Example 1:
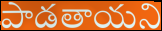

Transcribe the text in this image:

పాడతాయని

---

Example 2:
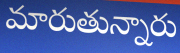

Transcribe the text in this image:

మారుతున్నారు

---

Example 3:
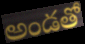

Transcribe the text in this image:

అండతో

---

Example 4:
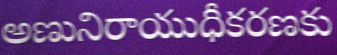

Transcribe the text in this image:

అణునిరాయుధీకరణకు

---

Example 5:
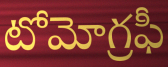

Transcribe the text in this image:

టోమోగ్రఫీ